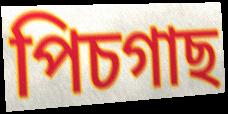
পিচগাছ